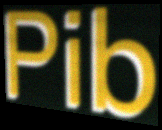
Pib